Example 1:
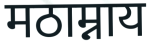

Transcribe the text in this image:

मठाम्नाय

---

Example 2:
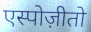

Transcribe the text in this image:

एस्पोज़ीतो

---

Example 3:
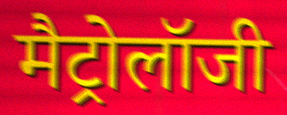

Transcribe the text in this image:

मैट्रोलॉजी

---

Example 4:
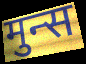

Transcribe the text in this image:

मुन्स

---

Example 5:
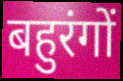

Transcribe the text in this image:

बहुरंगों